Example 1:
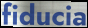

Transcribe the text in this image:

fiducia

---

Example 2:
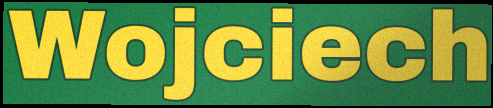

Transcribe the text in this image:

Wojciech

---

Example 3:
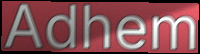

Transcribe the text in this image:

Adhem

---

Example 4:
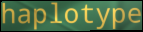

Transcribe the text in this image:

haplotype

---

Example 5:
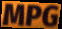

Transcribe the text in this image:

MPG